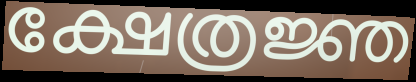
ക്ഷേത്രജ്ഞ